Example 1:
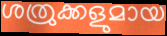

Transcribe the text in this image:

ശത്രുക്കളുമായ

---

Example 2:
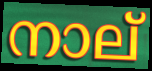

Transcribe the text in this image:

നാല്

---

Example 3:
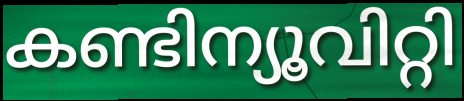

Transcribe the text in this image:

കണ്ടിന്യൂവിറ്റി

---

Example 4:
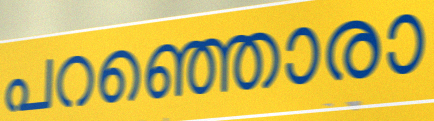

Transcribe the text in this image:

പറഞ്ഞൊരാ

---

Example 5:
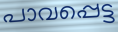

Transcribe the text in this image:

പാവപ്പെട്ട